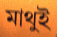
মাথুই